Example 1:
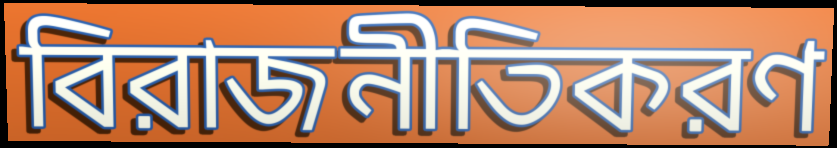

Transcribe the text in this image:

বিরাজনীতিকরণ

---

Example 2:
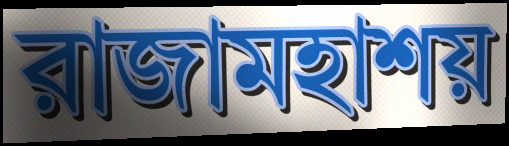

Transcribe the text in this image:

রাজামহাশয়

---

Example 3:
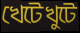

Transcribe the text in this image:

খেটেখুটে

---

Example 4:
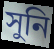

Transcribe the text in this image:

সুনি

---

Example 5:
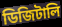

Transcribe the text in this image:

ডিজিটালি